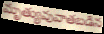
మృత్యువువాతబడిన